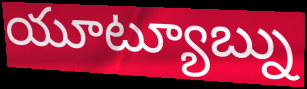
యూట్యూబ్ను